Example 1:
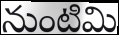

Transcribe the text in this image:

నుంటిమి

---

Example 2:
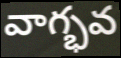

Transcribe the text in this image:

వాగ్భవ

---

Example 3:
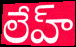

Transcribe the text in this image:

లేహ్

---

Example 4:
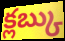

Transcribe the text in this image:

క్లబ్కు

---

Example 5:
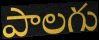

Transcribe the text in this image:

పాలగు